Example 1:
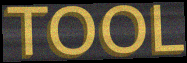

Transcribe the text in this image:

TOOL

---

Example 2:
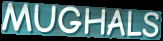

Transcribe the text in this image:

MUGHALS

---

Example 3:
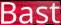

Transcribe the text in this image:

Bast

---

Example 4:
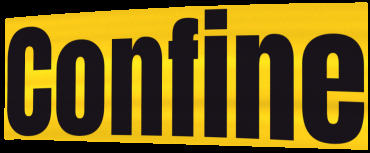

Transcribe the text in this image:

Confine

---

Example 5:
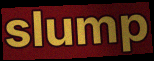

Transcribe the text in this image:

slump